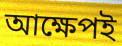
আক্ষেপই